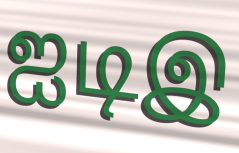
ஐடிஇ